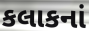
કલાકનાં